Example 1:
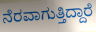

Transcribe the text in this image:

ನೆರವಾಗುತ್ತಿದ್ದಾರೆ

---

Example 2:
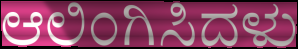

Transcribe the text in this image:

ಆಲಿಂಗಿಸಿದಳು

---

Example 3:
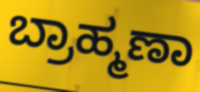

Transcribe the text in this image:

ಬ್ರಾಹ್ಮಣಾ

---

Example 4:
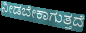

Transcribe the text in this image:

ನೀಡಬೇಕಾಗುತ್ತದೆ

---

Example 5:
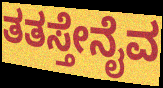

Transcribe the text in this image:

ತತಸ್ತೇನೈವ